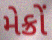
મેક્રોં